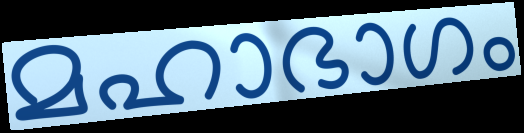
മഹാഭാഗം